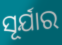
ସୂର୍ଯାର